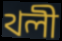
থলী